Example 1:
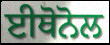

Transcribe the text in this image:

ਈਥੋਨੋਲ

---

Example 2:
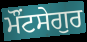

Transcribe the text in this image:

ਮੌਂਟਸੇਗੁਰ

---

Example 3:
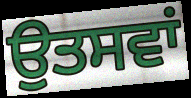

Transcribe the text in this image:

ਉਤਸਵਾਂ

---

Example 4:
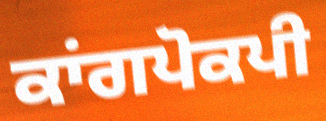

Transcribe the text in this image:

ਕਾਂਗਪੋਕਪੀ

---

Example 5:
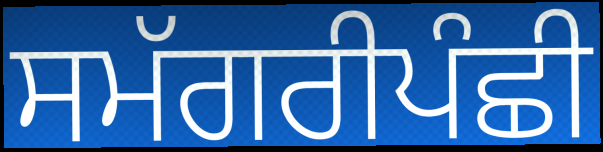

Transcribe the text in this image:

ਸਮੱਗਰੀਪੰਛੀ